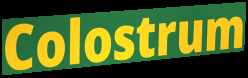
Colostrum